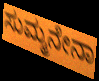
ಸುಮ್ಮನೇನಾ